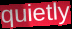
quietly